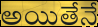
అయితేనే